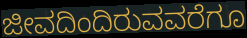
ಜೀವದಿಂದಿರುವವರೆಗೂ